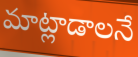
మాట్లాడాలనే